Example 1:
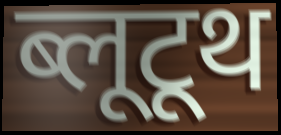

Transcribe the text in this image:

ब्‍लूटूथ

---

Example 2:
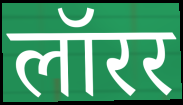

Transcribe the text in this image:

लॉरर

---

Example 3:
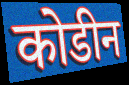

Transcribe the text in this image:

कोडीन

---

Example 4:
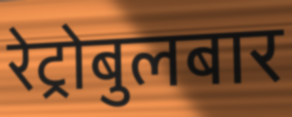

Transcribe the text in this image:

रेट्रोबुलबार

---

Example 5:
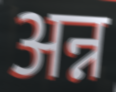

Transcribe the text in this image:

अन्न